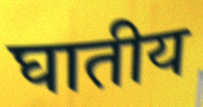
घातीय